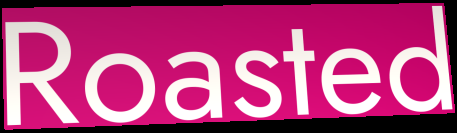
Roasted